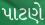
પાટણે